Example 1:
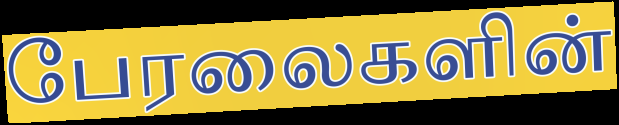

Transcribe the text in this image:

பேரலைகளின்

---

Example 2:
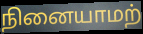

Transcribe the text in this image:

நினையாமற்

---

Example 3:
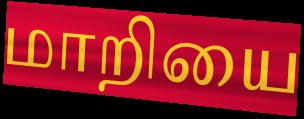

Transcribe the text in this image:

மாறியை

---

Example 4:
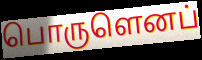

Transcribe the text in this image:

பொருளெனப்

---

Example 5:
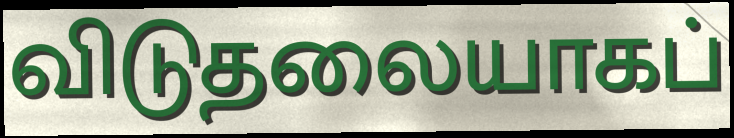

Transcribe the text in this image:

விடுதலையாகப்